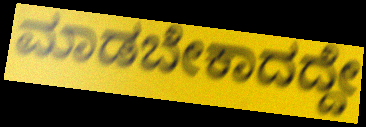
ಮಾಡಬೇಕಾದದ್ದೇ